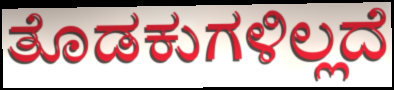
ತೊಡಕುಗಳಿಲ್ಲದೆ